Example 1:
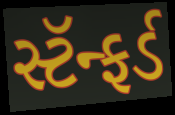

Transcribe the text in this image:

સ્ટૅન્ફર્ડ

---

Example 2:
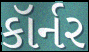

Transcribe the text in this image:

કૉર્નર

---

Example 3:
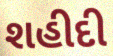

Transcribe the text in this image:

શહીદી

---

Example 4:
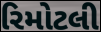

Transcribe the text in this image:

રિમોટલી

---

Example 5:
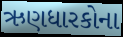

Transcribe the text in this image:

ઋણધારકોના